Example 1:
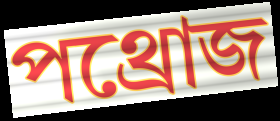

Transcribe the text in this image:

পথ্রোজ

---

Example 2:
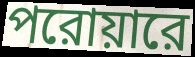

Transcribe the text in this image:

পরোয়ারে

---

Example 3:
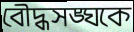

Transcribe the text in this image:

বৌদ্ধসঙ্ঘকে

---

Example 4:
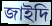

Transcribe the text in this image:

জাইদি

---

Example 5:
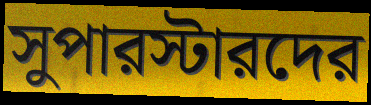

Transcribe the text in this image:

সুপারস্টারদের